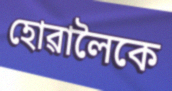
হোৱালৈকে